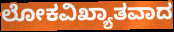
ಲೋಕವಿಖ್ಯಾತವಾದ